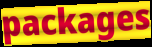
packages